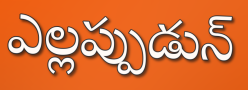
ఎల్లప్పుడున్